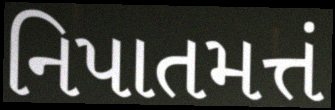
નિપાતમત્તં